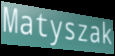
Matyszak